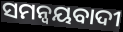
ସମନ୍ୱୟବାଦୀ